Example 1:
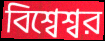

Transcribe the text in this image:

বিশ্বেশ্বর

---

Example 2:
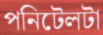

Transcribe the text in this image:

পনিটেলটা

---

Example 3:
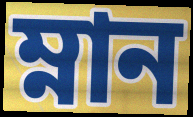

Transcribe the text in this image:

ম্নান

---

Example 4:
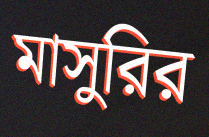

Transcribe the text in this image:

মাসুরির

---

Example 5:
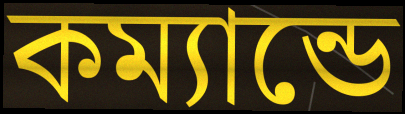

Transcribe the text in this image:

কম্যান্ডে